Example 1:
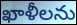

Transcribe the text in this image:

ఖాళీలను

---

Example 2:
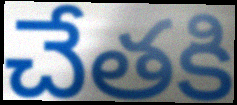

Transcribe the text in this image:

చేతకి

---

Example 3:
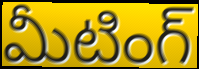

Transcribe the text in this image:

మీటింగ్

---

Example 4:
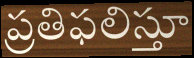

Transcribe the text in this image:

ప్రతిఫలిస్తూ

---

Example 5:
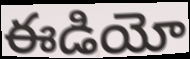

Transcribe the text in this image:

ఈడియో